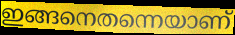
ഇങ്ങനെതന്നെയാണ്